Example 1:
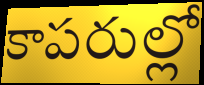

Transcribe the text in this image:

కాపరుల్లో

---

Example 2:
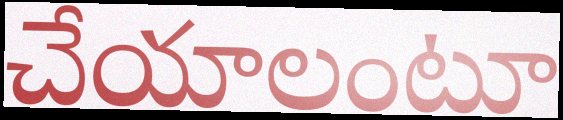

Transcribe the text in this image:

చేయాలంటూ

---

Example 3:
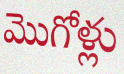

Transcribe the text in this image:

మొగోళ్లు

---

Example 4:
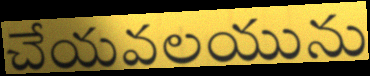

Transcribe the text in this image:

చేయవలయును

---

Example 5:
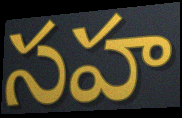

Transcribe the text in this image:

సహ